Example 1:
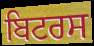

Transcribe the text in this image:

ਬਿਟਰਸ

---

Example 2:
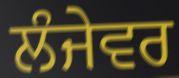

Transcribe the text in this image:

ਲੰਜੇਵਰ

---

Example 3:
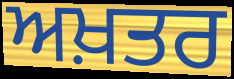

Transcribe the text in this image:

ਅਖ਼ਤਰ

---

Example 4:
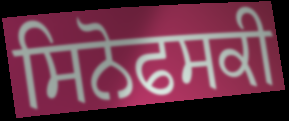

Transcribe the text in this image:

ਸਿਨੋਫਸਕੀ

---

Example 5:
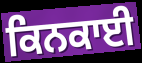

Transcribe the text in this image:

ਕਿਨਕਾਈ